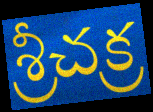
శ్రీచక్ర